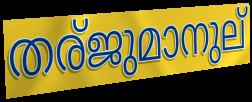
തര്ജുമാനുല്